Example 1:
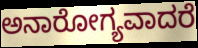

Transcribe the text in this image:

ಅನಾರೋಗ್ಯವಾದರೆ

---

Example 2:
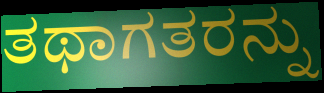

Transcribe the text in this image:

ತಥಾಗತರನ್ನು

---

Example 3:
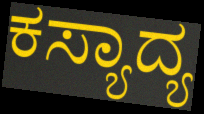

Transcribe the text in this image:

ಕಸ್ಯಾದ್ಯ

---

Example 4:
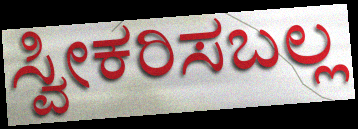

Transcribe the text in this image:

ಸ್ವೀಕರಿಸಬಲ್ಲ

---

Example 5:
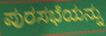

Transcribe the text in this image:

ಪುರಸಭೆಯನ್ನು